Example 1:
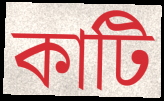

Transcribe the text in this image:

কাটি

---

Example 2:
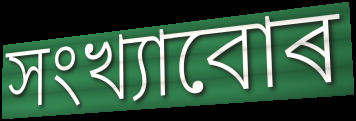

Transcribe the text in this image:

সংখ্যাবোৰ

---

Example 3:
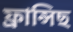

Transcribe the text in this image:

ফ্ৰান্সিছ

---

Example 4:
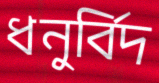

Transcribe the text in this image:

ধনুৰ্বিদ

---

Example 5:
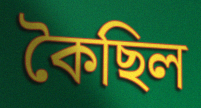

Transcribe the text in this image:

কৈছিল